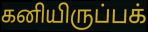
கனியிருப்பக்